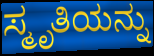
ಸ್ಮೃತಿಯನ್ನು